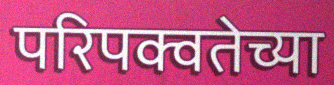
परिपक्वतेच्या